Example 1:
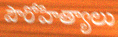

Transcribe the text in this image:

పౌరోహిత్యాలు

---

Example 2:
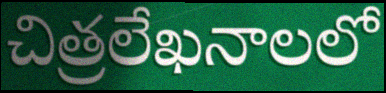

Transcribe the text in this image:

చిత్రలేఖనాలలో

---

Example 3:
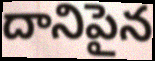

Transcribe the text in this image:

దానిపైన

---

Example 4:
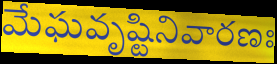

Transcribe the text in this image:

మేఘవృష్టినివారణః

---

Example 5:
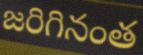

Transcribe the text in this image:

జరిగినంత